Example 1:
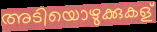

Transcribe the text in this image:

അടിയൊഴുക്കുകള്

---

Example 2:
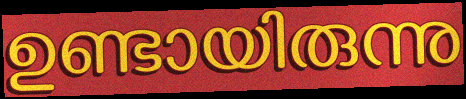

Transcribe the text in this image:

ഉണ്ടായിരുന്നു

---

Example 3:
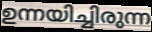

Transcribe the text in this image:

ഉന്നയിച്ചിരുന്ന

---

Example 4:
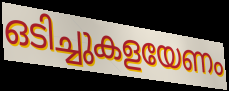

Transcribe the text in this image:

ഒടിച്ചുകളയേണം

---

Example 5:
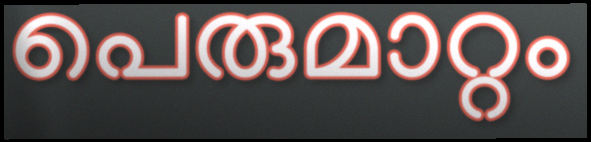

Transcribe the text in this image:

പെരുമാറ്റം